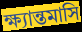
ক্ষ্যান্তমাসি